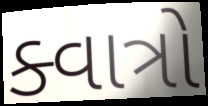
ક્વાત્રો